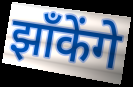
झाँकेंगे